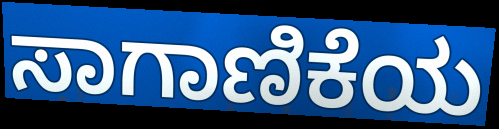
ಸಾಗಾಣಿಕೆಯ